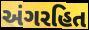
અંગરહિત